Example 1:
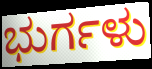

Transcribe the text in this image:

ಭುರ್ಗಳು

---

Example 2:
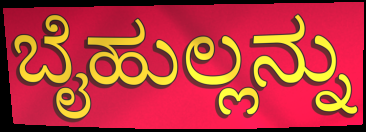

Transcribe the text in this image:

ಬೈಹುಲ್ಲನ್ನು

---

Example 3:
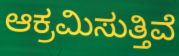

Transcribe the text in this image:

ಆಕ್ರಮಿಸುತ್ತಿವೆ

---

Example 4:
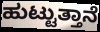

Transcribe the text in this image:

ಹುಟ್ಟುತ್ತಾನೆ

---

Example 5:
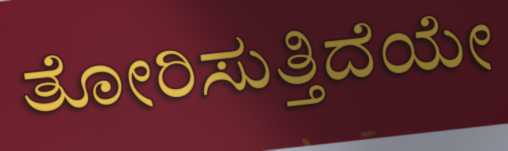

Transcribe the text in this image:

ತೋರಿಸುತ್ತಿದೆಯೇ